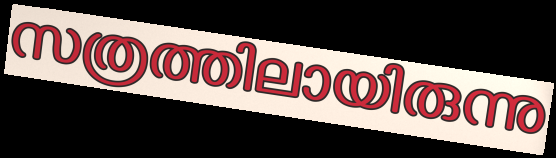
സത്രത്തിലായിരുന്നു